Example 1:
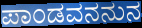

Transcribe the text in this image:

ಪಾಂಡವನನುನ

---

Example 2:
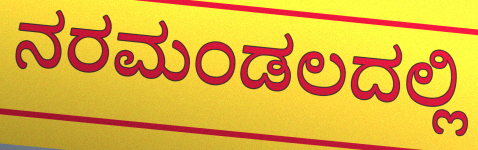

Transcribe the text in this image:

ನರಮಂಡಲದಲ್ಲಿ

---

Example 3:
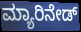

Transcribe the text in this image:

ಮ್ಯಾರಿನೇಡ್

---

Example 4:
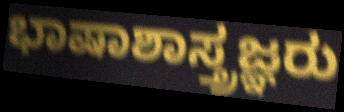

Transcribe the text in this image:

ಭಾಷಾಶಾಸ್ತ್ರಜ್ಞರು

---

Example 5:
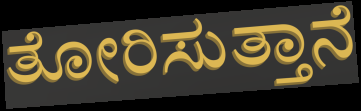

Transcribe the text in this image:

ತೋರಿಸುತ್ತಾನೆ